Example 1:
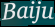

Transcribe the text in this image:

Baiju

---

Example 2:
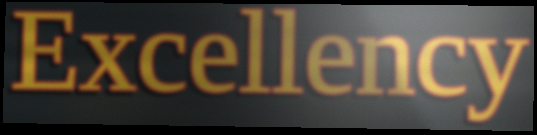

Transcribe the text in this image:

Excellency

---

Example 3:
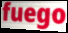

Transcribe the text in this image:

fuego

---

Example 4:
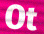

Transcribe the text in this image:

Ot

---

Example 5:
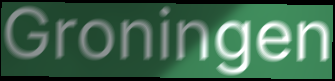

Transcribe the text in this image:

Groningen